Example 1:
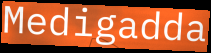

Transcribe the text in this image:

Medigadda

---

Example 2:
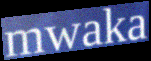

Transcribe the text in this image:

mwaka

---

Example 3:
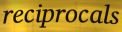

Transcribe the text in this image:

reciprocals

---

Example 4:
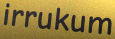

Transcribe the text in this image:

irrukum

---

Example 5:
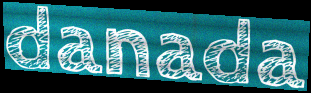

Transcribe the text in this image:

danada